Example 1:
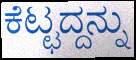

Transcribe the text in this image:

ಕೆಟ್ಟದ್ದನ್ನು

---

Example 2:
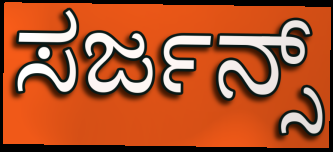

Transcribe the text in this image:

ಸರ್ಜನ್ಸ್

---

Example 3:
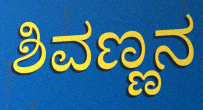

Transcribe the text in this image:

ಶಿವಣ್ಣನ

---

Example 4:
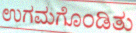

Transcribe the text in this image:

ಉಗಮಗೊಂಡಿತು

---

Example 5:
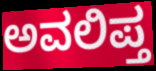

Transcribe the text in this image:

ಅವಲಿಪ್ತ